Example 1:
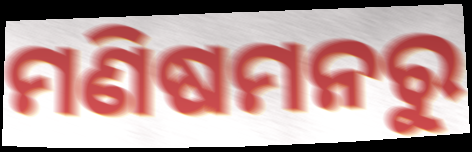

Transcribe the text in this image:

ମଣିଷମନରୁ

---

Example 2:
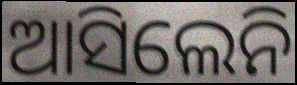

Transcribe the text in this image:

ଆସିଲେନି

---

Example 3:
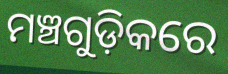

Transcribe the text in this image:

ମଞ୍ଚଗୁଡ଼ିକରେ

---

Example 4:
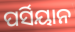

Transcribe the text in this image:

ପର୍ସିୟାନ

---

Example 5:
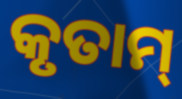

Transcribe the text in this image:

କୃତାମ୍